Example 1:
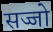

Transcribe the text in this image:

सज्जो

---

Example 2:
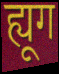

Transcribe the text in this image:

ह्यूग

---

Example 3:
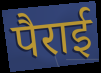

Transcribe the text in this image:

पैराई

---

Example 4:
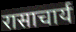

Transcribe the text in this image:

रासाचार्य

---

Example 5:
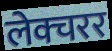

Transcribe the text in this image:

लेक्‍चरर